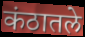
कंठातले